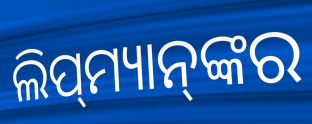
ଲିପ୍‌ମ୍ୟାନ୍‌ଙ୍କର